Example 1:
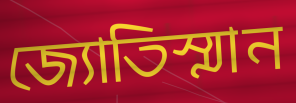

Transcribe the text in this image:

জ্যোতিস্মান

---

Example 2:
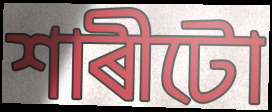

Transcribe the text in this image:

শাৰীটো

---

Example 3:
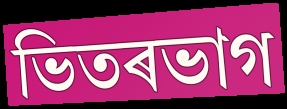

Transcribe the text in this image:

ভিতৰভাগ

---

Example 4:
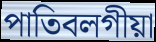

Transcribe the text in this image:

পাতিবলগীয়া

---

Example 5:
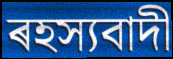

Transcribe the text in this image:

ৰহস্যবাদী